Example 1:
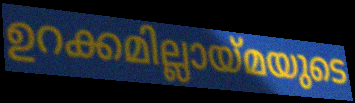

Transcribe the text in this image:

ഉറക്കമില്ലായ്മയുടെ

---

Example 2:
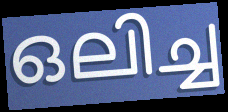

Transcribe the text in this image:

ഒലിച്ച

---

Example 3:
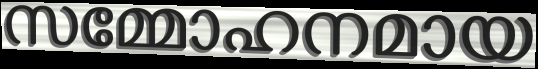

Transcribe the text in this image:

സമ്മോഹനമായ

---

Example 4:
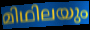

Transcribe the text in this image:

മിഥിലയും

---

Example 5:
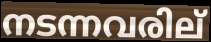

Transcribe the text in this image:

നടന്നവരില്